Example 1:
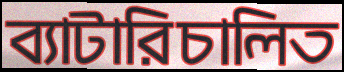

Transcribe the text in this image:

ব্যাটারিচালিত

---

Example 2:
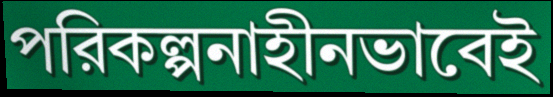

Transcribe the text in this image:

পরিকল্পনাহীনভাবেই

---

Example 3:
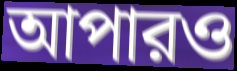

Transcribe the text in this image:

আপারও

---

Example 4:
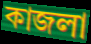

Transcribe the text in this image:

কাজলা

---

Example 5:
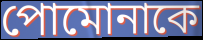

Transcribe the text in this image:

পোমোনাকে